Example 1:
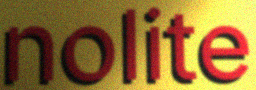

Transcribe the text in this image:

nolite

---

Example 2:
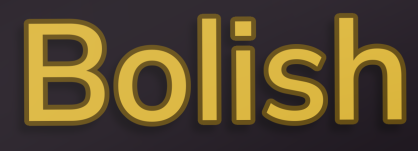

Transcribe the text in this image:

Bolish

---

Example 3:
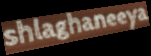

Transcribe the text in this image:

shlaghaneeya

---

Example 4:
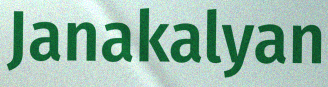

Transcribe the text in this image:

Janakalyan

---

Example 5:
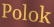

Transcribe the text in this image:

Polok